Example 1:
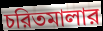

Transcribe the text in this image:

চরিতমালার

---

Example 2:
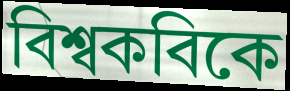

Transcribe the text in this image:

বিশ্বকবিকে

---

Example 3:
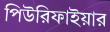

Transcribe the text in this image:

পিউরিফাইয়ার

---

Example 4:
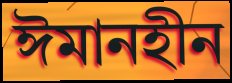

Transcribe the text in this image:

ঈমানহীন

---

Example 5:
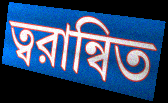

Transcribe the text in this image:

ত্বরান্বিত